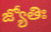
జ్యోతిః